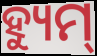
ହ୍ୟୁମ୍